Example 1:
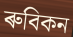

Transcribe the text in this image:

ৰুবিকন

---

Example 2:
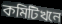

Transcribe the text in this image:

কমিটিখনে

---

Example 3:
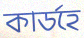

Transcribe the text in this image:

কাৰ্ডহে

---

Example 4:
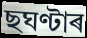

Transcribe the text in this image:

ছঘণ্টাৰ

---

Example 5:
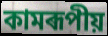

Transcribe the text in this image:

কামৰূপীয়